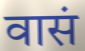
वासं